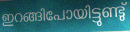
ഇറങ്ങിപോയിട്ടുണ്ടു്